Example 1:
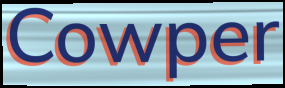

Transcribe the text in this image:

Cowper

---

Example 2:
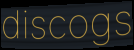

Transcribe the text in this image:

discogs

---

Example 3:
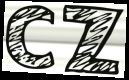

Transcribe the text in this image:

cz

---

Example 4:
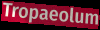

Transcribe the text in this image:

Tropaeolum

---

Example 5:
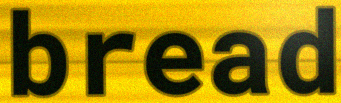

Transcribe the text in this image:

bread